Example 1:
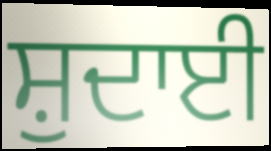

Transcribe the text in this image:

ਸ਼ੁਦਾਈ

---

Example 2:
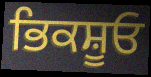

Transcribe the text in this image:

ਭਿਕਸ਼ੂਓ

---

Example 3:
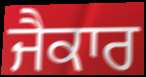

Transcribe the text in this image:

ਜੈਕਾਰ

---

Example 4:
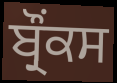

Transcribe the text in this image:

ਬ੍ਰੌਂਕਸ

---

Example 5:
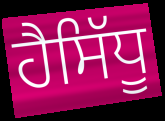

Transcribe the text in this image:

ਹੈਸਿੱਧੂ